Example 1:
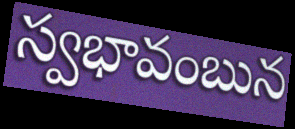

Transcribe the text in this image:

స్వభావంబున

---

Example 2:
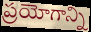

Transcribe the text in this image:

ప్రయోగాన్ని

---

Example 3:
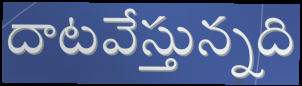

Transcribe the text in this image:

దాటవేస్తున్నది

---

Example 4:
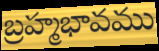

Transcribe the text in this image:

బ్రహ్మభావము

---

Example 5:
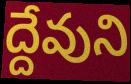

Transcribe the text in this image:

ద్దేవుని